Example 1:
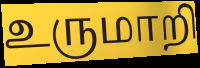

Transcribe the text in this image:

உருமாறி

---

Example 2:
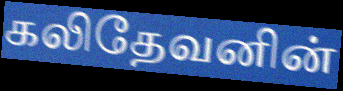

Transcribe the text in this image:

கலிதேவனின்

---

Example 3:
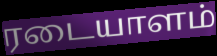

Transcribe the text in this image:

ரடையாளம்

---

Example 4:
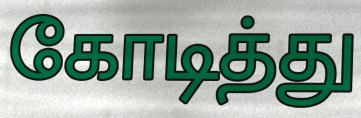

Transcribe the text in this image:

கோடித்து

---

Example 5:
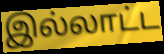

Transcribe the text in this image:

இல்லாட்ட